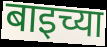
बाइच्या